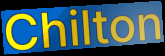
Chilton